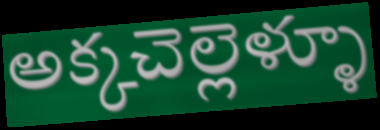
అక్కచెల్లెళ్ళూ